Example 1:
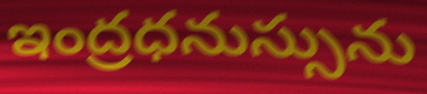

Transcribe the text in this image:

ఇంద్రధనుస్సును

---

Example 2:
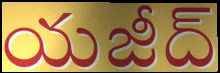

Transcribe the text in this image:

యజీద్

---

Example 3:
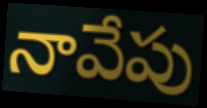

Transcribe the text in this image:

నావేపు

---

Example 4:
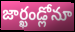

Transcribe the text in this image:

జార్ఖండ్లోనూ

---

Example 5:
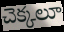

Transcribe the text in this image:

చెక్కలూ